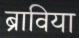
ब्राविया